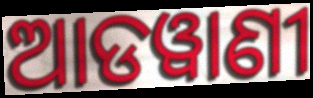
ଆଡୱାଣୀ